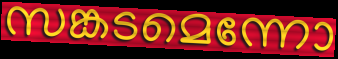
സങ്കടമെന്നോ